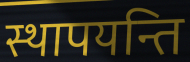
स्थापयन्ति